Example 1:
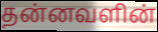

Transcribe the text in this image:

தன்னவளின்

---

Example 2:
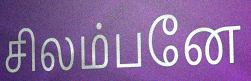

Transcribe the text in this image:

சிலம்பனே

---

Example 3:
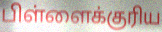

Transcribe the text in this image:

பிள்ளைக்குரிய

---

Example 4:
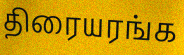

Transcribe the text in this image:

திரையரங்க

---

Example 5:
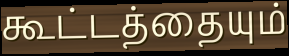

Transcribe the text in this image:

கூட்டத்தையும்